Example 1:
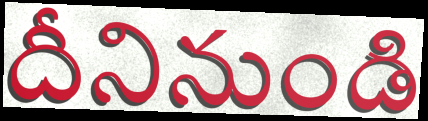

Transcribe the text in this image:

దీనినుండి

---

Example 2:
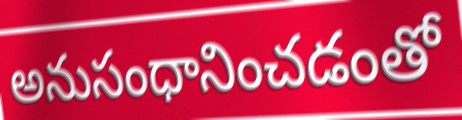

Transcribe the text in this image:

అనుసంధానించడంతో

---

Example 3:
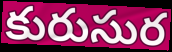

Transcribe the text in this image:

కురుసుర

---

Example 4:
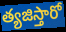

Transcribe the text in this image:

త్యజిస్తారో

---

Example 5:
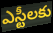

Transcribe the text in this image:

ఎస్టీలకు